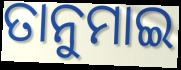
ତାନୁମାଇ